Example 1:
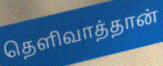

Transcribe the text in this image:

தெளிவாத்தான்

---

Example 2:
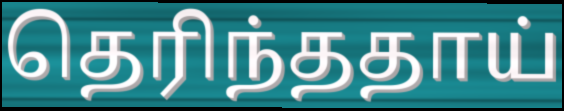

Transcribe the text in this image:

தெரிந்ததாய்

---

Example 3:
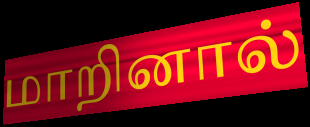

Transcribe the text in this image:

மாறினால்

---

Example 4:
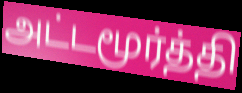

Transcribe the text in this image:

அட்டமூர்த்தி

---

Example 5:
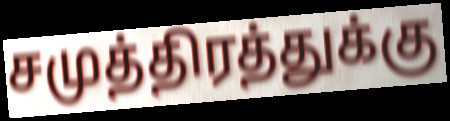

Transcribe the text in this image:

சமுத்திரத்துக்கு